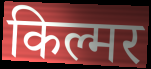
किल्मर